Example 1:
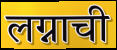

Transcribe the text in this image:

लग्नाची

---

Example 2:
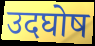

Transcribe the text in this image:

उदघोष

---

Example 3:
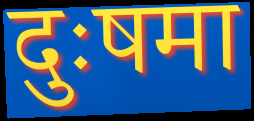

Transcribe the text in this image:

दुःषमा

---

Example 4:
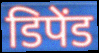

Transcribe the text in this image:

डिपेंड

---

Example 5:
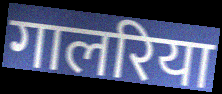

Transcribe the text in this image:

गालरिया